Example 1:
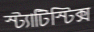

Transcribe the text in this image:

স্ট্যাটিস্টিক্স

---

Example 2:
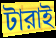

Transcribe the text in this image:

টারাই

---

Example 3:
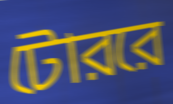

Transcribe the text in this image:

টোররে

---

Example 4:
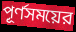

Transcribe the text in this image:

পূর্ণসময়ের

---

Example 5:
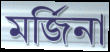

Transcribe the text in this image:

মর্জিনা